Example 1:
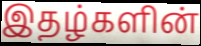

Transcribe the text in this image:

இதழ்களின்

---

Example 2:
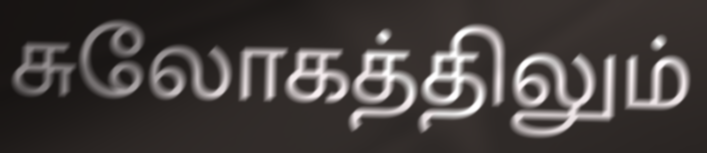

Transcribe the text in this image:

சுலோகத்திலும்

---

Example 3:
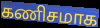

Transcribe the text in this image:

கணிசமாக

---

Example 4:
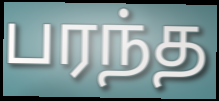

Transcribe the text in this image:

பரந்த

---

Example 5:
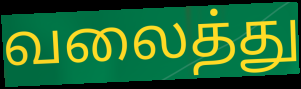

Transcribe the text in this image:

வலைத்து